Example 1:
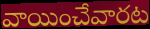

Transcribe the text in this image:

వాయించేవారట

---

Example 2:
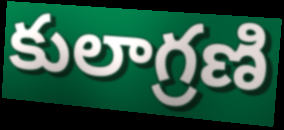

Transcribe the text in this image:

కులాగ్రణి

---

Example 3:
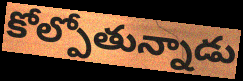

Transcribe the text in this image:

కోల్పోతున్నాడు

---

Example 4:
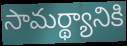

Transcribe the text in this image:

సామర్థ్యానికి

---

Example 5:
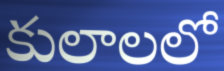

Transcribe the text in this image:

కులాలలో